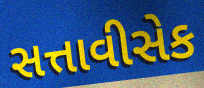
સત્તાવીસેક